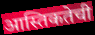
आस्तिकतेची